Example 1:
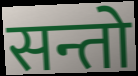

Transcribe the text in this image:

सन्तो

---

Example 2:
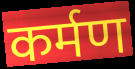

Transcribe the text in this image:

कर्मण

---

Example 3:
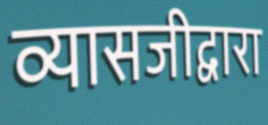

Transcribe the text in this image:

व्यासजीद्वारा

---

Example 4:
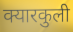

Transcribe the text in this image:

क्यारकुली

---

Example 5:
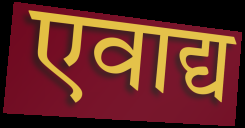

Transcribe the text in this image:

एवाद्य